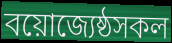
বয়োজ্যেষ্ঠসকল